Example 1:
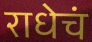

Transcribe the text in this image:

राधेचं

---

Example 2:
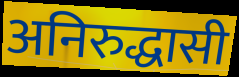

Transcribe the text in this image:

अनिरुद्धासी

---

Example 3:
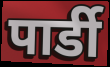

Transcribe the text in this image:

पार्डी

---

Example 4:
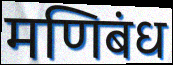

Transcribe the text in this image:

मणिबंध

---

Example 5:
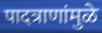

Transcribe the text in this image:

पादत्राणांमुळे